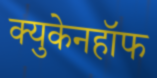
क्युकेनहॉफ